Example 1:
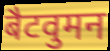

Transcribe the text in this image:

बैटवुमन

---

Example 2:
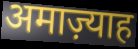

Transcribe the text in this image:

अमाज़्याह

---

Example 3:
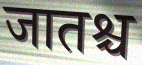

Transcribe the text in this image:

जातश्च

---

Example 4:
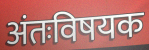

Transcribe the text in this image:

अंतःविषयक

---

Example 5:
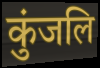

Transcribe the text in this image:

कुंजलि